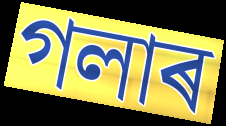
গলাৰ